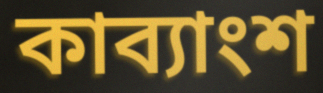
কাব্যাংশ